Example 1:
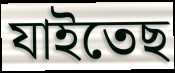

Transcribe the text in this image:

যাইতেছ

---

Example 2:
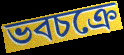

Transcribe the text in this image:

ভবচক্রে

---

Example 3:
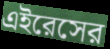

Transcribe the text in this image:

এইরেসের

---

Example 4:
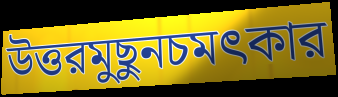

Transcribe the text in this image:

উত্তরমুছুনচমৎকার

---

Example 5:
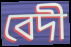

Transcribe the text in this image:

বেদী